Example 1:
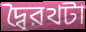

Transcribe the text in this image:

দ্বৈরথটা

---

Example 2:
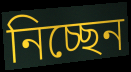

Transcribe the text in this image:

নিচ্ছেন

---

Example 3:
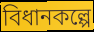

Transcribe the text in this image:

বিধানকল্পে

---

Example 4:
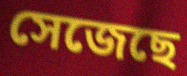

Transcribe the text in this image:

সেজেছে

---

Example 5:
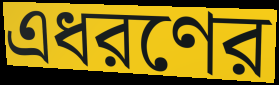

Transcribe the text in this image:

এধরণের